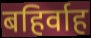
बहिर्वाह